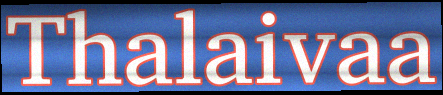
Thalaivaa